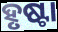
ହୃଷ୍ଟା